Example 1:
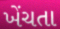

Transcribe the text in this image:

ખેંચતા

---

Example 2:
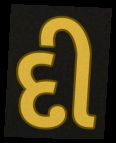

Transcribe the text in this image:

દી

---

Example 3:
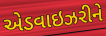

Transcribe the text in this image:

એડવાઇઝરીને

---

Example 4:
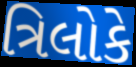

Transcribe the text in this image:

ત્રિલોકે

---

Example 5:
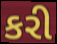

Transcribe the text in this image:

કરી